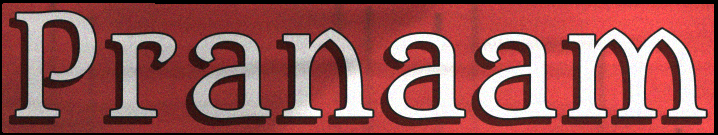
Pranaam